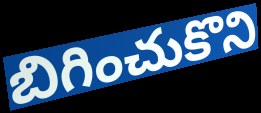
బిగించుకొని